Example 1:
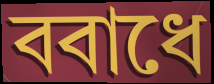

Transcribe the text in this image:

ববাধে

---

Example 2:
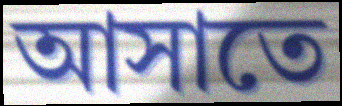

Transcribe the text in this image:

আসাতে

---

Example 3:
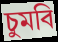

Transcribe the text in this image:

চুমবি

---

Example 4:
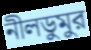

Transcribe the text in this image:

নীলডুমুর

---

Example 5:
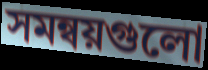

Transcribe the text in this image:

সমন্বয়গুলো